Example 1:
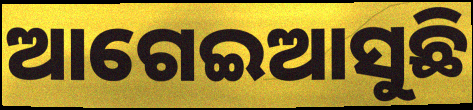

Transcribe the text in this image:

ଆଗେଇଆସୁଛି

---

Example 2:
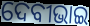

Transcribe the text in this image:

ଦେବୀଭାଇ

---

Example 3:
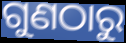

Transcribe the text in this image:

ଗୁଣଠାରୁ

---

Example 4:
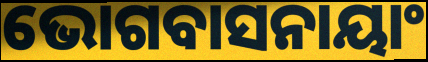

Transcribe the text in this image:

ଭୋଗବାସନାୟାଂ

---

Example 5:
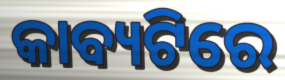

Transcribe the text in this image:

କାବ୍ୟଟିରେ